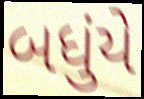
બધુંયે